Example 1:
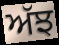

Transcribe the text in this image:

ਅੱਝ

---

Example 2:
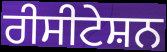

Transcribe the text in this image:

ਰੀਸੀਟੇਸ਼ਨ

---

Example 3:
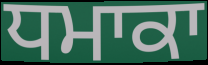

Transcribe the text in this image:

ਧਮਾਕਾ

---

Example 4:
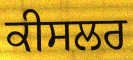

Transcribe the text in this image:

ਕੀਸਲਰ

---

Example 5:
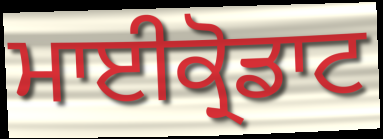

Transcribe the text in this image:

ਮਾਈਕ੍ਰੋਡਾਟ